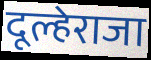
दूल्हेराजा